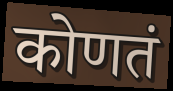
कोणतं